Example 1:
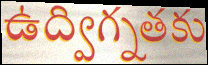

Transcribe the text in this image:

ఉద్విగ్నతకు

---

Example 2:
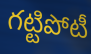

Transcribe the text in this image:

గట్టిపోటీ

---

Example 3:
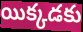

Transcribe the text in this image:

యిక్కడకు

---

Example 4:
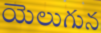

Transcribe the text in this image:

యెలుగున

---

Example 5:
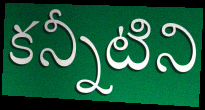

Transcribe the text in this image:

కన్నీటిని